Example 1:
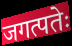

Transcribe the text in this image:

जगत्पतेः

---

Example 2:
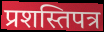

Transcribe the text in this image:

प्रशस्तिपत्र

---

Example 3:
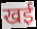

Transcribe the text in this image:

खई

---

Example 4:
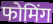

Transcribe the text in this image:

फोमिंग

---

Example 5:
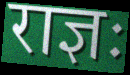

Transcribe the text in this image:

राज्ञः